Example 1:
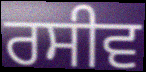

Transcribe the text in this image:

ਰਸੀਵ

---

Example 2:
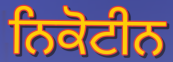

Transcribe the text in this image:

ਨਿਕੋਟੀਨ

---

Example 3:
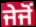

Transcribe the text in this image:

ਜੇਜੋਂ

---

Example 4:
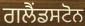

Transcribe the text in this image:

ਗਲੈਂਡਸਟੋਨ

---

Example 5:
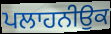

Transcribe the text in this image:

ਪਲਾਹਨੀਉਕ